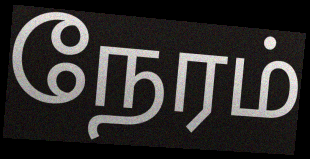
நேரம்